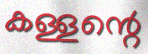
കള്ളന്റെ